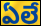
ఏలే